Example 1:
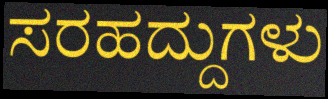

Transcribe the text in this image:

ಸರಹದ್ದುಗಳು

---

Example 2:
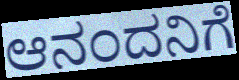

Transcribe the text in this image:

ಆನಂದನಿಗೆ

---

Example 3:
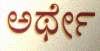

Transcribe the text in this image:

ಅರ್ಥೇ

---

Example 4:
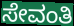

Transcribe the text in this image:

ಸೇವಂತಿ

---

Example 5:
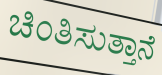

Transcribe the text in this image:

ಚಿಂತಿಸುತ್ತಾನೆ